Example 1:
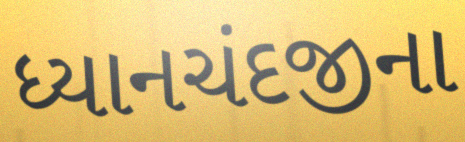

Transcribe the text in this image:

ધ્યાનચંદજીના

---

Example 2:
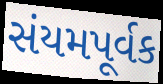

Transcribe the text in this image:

સંયમપૂર્વક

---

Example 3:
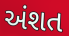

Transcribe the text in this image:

અંશત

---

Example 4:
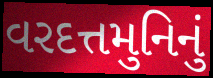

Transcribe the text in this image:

વરદત્તમુનિનું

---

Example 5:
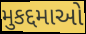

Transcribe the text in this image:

મુકદ્દમાઓ